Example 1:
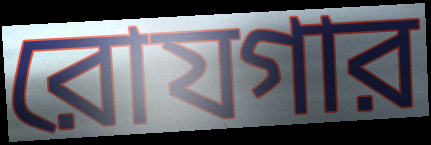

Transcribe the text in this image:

রোযগার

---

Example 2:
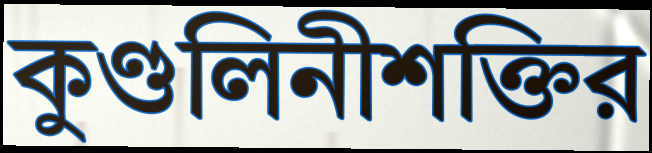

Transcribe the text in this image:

কুণ্ডলিনীশক্তির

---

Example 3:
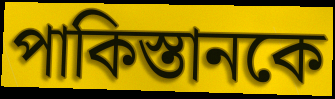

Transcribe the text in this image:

পাকিস্তানকে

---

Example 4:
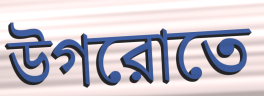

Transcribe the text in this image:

উগরোতে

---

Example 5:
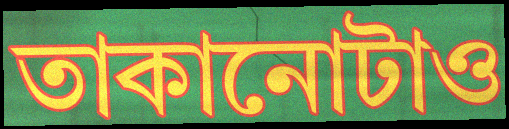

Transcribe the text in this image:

তাকানোটাও